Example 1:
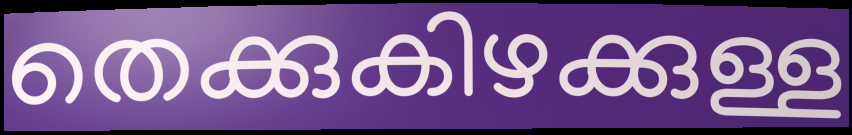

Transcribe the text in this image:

തെക്കുകിഴക്കുള്ള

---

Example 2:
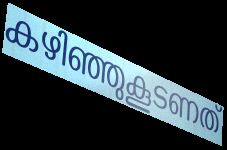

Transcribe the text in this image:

കഴിഞ്ഞുകൂടണത്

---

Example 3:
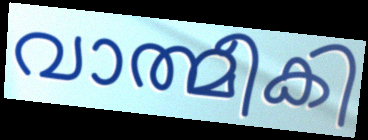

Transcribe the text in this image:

വാത്മീകി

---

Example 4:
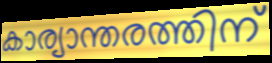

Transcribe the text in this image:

കാര്യാന്തരത്തിന്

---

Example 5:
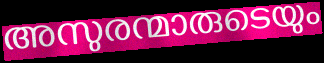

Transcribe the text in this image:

അസുരന്മാരുടെയും